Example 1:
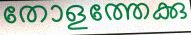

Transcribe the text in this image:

തോളത്തേക്കു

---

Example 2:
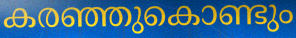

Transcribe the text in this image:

കരഞ്ഞുകൊണ്ടും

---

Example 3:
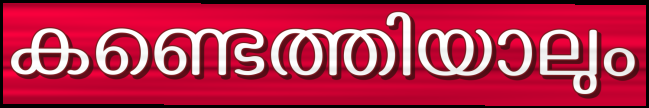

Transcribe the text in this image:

കണ്ടെത്തിയാലും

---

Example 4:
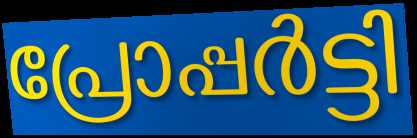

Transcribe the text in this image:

പ്രോപ്പർട്ടി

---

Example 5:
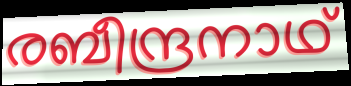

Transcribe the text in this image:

രബീന്ദ്രനാഥ്